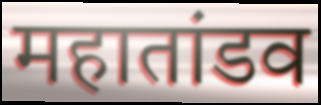
महातांडव